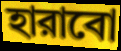
হারাবো